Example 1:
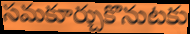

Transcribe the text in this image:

సమకూర్చుకొనుటకు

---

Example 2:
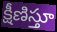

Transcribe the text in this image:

క్షీణిస్తూ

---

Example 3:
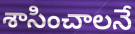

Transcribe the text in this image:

శాసించాలనే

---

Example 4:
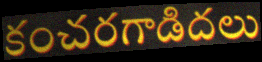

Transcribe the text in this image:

కంచరగాడిదలు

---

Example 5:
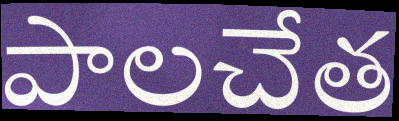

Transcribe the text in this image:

పాలచేత